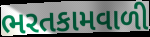
ભરતકામવાળી